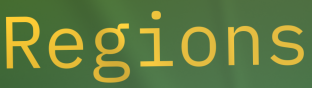
Regions